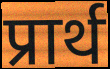
प्रार्थ